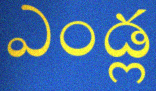
ఎండ్ల